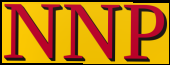
NNP